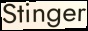
Stinger